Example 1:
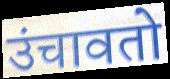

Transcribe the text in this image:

उंचावतो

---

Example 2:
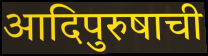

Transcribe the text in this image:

आदिपुरुषाची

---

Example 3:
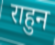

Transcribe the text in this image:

राहुन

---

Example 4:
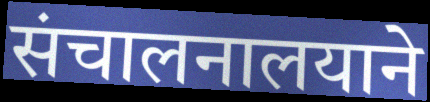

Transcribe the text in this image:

संचालनालयाने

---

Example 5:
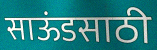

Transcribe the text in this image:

साऊंडसाठी